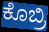
ಕೊಬ್ರಿ